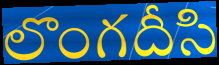
లొంగదీసి